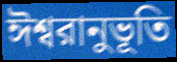
ঈশ্বরানুভূতি